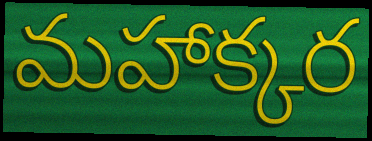
మహాక్కర